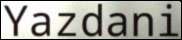
Yazdani